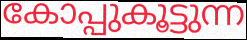
കോപ്പുകൂട്ടുന്ന